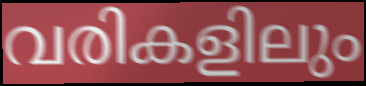
വരികളിലും